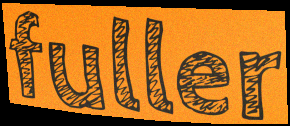
fuller